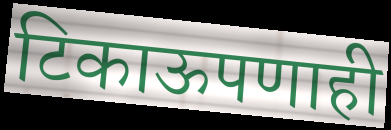
टिकाऊपणाही